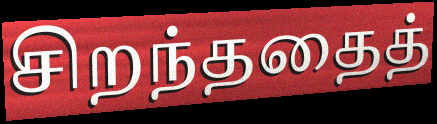
சிறந்ததைத்